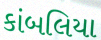
કાંબલિયા